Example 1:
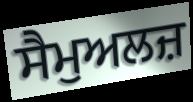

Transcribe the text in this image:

ਸੈਮੁਅਲਜ਼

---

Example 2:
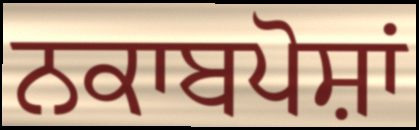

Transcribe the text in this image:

ਨਕਾਬਪੋਸ਼ਾਂ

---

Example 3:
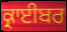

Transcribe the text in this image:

ਕ੍ਰਾਈਬਰ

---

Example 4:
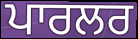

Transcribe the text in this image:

ਪਾਰਲਰ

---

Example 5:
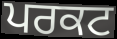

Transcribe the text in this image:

ਪਰਕਟ